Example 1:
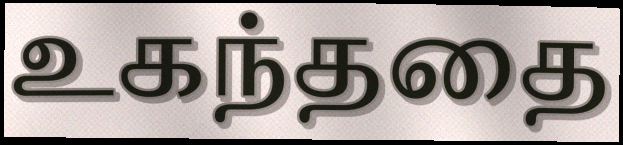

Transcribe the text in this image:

உகந்ததை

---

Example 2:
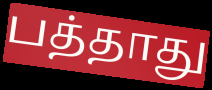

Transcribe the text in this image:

பத்தாது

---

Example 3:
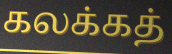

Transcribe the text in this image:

கலக்கத்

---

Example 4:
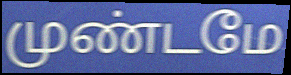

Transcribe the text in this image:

முண்டமே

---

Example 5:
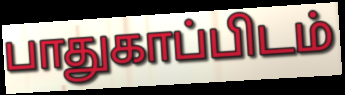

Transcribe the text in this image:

பாதுகாப்பிடம்